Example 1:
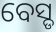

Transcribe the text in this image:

ବେସ୍ଡ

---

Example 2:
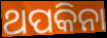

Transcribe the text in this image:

ଥପକିନା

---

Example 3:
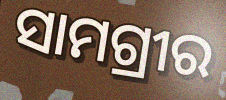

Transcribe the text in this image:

ସାମଗ୍ରୀର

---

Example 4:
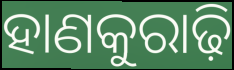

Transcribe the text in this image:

ହାଣକୁରାଢ଼ି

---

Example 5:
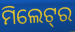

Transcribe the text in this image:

ମିଲେଟ୍‌ର